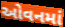
ઓવનમાં